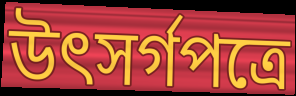
উৎসর্গপত্রে